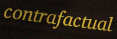
contrafactual